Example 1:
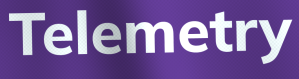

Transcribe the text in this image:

Telemetry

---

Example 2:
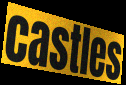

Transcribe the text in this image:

castles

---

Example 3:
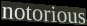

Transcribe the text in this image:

notorious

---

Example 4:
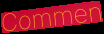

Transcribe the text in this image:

Commen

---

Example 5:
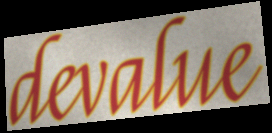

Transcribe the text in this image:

devalue